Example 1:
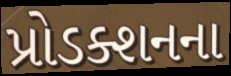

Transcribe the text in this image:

પ્રોડક્શનના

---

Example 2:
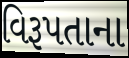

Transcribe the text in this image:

વિરૂપતાના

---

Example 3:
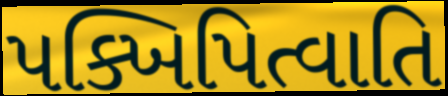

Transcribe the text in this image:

પક્ખિપિત્વાતિ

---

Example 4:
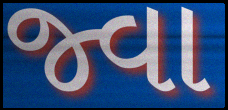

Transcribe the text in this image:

જ્વા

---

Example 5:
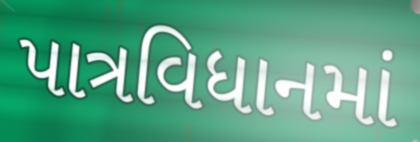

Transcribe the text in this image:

પાત્રવિધાનમાં